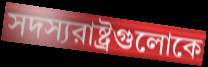
সদস্যরাষ্ট্রগুলোকে